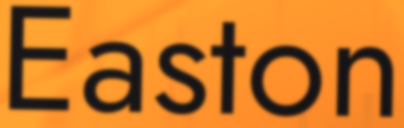
Easton